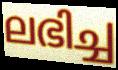
ലഭിച്ച